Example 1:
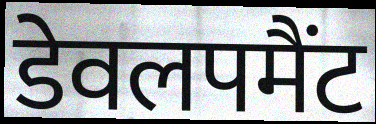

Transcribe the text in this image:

डेवलपमैंट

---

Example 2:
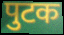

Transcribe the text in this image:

पुटक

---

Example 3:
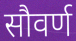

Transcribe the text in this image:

सौवर्ण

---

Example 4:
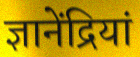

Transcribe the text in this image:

ज्ञानेंद्रियां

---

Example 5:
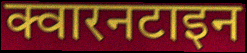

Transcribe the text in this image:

क्वारनटाइन